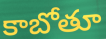
కాబోతూ